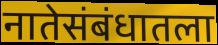
नातेसंबंधातला